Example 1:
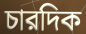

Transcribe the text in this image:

চারদিক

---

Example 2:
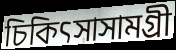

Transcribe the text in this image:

চিকিৎসাসামগ্রী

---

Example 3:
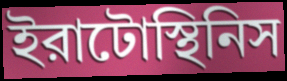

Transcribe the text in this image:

ইরাটোস্থিনিস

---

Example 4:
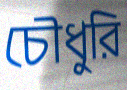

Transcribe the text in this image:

চৌধুরি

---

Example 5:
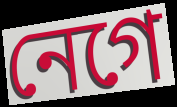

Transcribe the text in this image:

নেগে